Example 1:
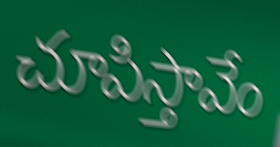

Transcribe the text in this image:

చూపిస్తావేం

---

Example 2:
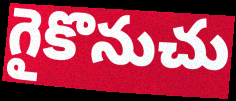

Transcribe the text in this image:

గైకొనుచు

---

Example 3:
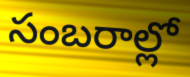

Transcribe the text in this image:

సంబరాల్లో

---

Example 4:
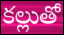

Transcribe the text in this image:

కల్లుతో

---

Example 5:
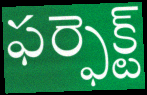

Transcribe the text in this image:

ఫర్ఫెక్ట్